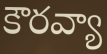
కౌరవ్యా